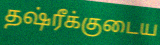
தஷ்ரீக்குடைய